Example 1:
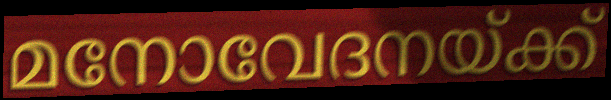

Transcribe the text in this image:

മനോവേദനയ്ക്ക്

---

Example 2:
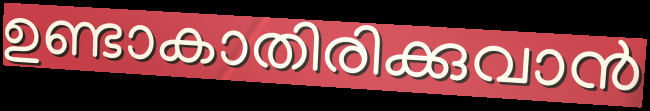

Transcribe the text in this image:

ഉണ്ടാകാതിരിക്കുവാൻ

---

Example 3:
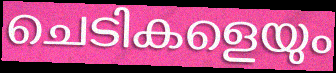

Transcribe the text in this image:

ചെടികളെയും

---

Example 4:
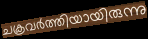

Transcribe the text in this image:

ചക്രവർത്തിയായിരുന്നു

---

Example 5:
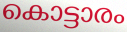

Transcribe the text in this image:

കൊട്ടാരം